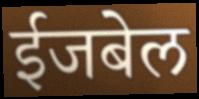
ईजबेल